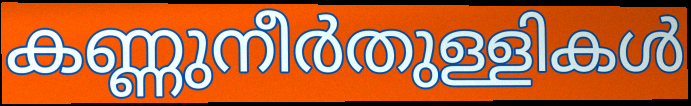
കണ്ണുനീർതുള്ളികൾ